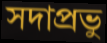
সদাপ্রভু